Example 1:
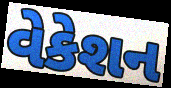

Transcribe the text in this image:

વેકેશન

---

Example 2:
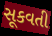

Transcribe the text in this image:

સૂકવતી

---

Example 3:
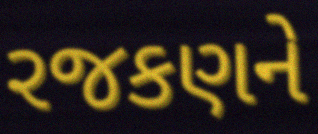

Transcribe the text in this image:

રજકણને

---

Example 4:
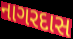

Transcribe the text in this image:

નાગરદાસ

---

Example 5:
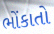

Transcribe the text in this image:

ભોંકાતો